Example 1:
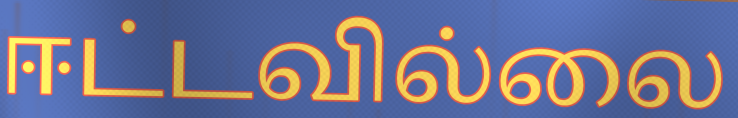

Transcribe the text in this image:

ஈட்டவில்லை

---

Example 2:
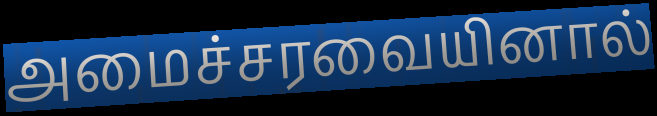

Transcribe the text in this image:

அமைச்சரவையினால்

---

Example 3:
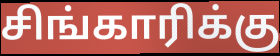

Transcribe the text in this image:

சிங்காரிக்கு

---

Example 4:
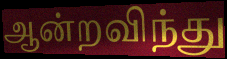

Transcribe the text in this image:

ஆன்றவிந்து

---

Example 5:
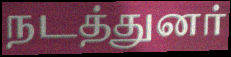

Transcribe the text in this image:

நடத்துனர்